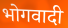
भोगवादी